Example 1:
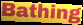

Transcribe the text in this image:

Bathing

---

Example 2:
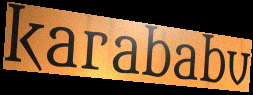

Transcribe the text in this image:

karababu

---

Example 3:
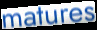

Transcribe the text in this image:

matures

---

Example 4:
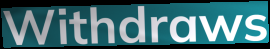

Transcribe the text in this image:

Withdraws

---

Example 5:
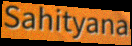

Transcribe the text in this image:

Sahityana